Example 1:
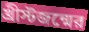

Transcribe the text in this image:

খ্রীস্টজন্মের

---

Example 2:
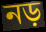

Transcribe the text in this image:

নড়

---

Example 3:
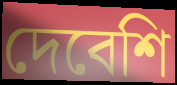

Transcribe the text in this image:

দেবেশি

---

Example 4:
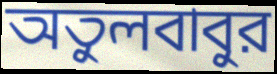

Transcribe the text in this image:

অতুলবাবুর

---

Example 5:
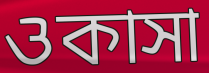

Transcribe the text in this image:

ওকাসা